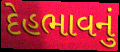
દેહભાવનું